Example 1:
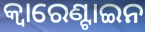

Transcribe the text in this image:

କ୍ୱାରେଣ୍ଟାଇନ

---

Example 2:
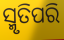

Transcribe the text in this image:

ସ୍ମୃତିପରି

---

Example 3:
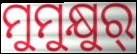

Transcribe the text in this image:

ମୁମୁକ୍ଷୁର୍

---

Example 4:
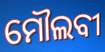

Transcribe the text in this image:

ମୌଲବୀ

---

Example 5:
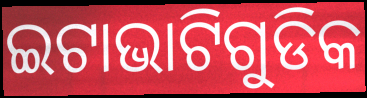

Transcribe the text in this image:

ଇଟାଭାଟିଗୁଡିକ